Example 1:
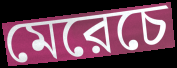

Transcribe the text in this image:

মেরেচে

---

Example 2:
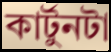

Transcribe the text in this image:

কার্টুনটা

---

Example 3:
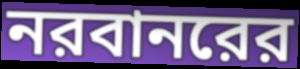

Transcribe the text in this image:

নরবানরের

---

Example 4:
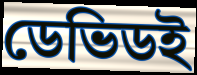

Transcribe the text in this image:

ডেভিডই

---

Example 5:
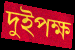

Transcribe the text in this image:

দুইপক্ষ